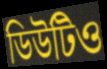
ডিউটিও